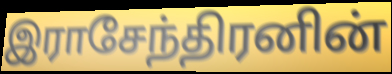
இராசேந்திரனின்